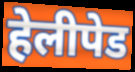
हेलीपेड